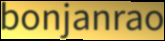
bonjanrao